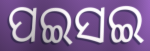
ପଇସଇ